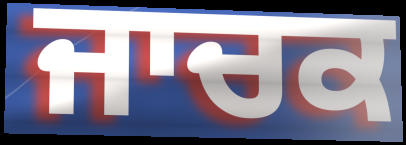
ਜਾਚਕ